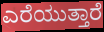
ಎರೆಯುತ್ತಾರೆ